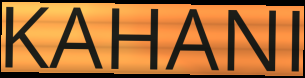
KAHANI